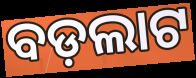
ବଡ଼ଲାଟ